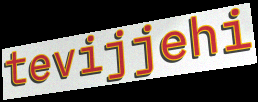
tevijjehi